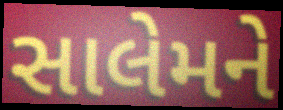
સાલેમને